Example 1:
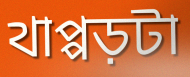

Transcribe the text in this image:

থাপ্পড়টা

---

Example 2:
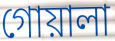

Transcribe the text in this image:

গোয়ালা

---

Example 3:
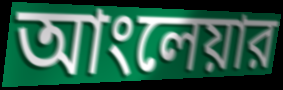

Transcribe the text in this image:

আংলেয়ার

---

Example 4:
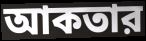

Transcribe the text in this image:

আকতার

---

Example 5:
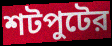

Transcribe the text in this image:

শটপুটের